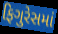
ફિગુરેસમાં